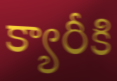
క్యారీకి